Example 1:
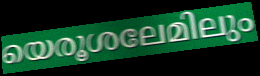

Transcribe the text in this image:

യെരൂശലേമിലും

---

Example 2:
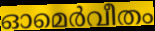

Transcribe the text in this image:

ഓമെർവീതം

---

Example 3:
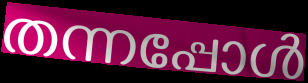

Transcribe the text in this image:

തന്നപ്പോൾ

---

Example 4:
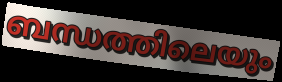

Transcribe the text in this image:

ബന്ധത്തിലെയും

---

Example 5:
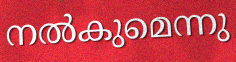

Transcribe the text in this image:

നൽകുമെന്നു